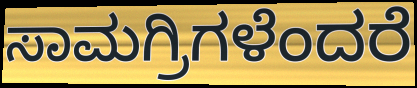
ಸಾಮಗ್ರಿಗಳೆಂದರೆ